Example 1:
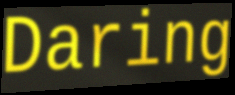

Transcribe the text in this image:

Daring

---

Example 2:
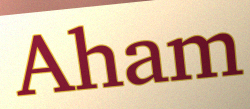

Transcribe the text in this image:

Aham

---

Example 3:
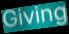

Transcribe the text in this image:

Giving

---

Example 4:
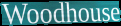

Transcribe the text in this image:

Woodhouse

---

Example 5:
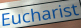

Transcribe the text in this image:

Eucharist